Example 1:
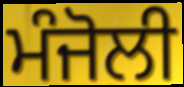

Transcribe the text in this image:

ਮੰਜੋਲੀ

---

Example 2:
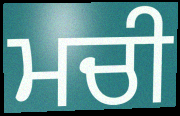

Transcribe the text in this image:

ਮਚੀ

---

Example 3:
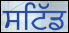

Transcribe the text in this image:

ਸਟਿੱਡ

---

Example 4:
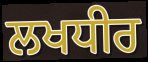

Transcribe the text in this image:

ਲਖਧੀਰ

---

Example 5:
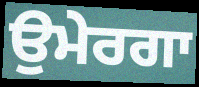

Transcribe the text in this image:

ਉਮੇਰਗਾ